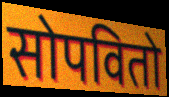
सोपवितो